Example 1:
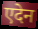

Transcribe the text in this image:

एदेन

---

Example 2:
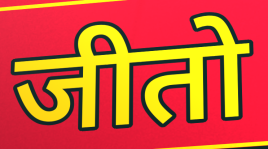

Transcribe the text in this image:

जीतो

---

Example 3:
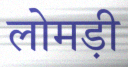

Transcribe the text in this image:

लोमड़ी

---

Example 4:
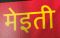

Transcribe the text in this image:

मेइती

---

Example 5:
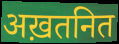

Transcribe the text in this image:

अख़तनित